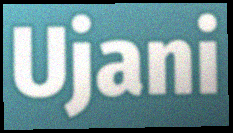
Ujani